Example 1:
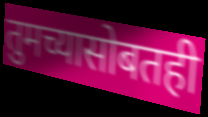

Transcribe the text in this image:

तुमच्यासोबतही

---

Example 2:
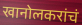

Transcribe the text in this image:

खानोलकरांचं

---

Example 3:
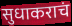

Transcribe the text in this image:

सुधाकराचं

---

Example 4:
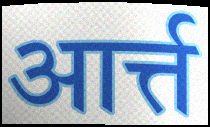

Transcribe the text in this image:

आर्त्त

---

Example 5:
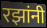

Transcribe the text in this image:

रझांनी